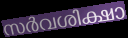
സർവശിക്ഷാ